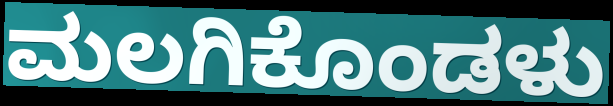
ಮಲಗಿಕೊಂಡಳು